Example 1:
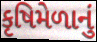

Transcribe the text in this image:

કૃષિમેળાનું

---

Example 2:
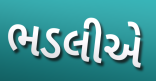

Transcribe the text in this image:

ભડલીએ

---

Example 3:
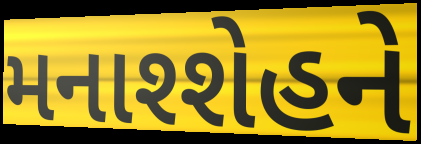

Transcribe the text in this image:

મનાશ્શેહને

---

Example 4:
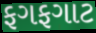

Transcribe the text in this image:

ફગફગાટ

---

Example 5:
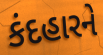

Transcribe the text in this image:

કંદહારને